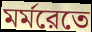
মর্মরেতে